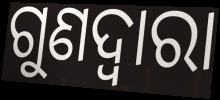
ଗୁଣଦ୍ଵାରା